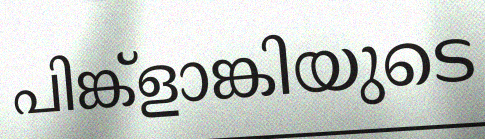
പിങ്ക്ളാങ്കിയുടെ